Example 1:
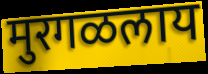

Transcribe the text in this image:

मुरगळलाय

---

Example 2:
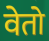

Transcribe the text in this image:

वेतो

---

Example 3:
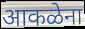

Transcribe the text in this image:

आकळेना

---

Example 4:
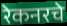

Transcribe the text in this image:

रेकनरचे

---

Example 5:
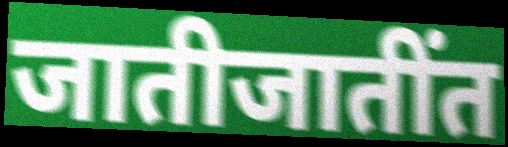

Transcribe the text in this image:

जातीजातींत